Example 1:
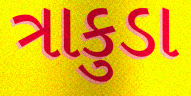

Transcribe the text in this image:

ત્રાકુડા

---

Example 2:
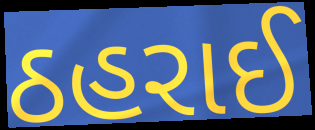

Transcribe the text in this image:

ઠહરાઈ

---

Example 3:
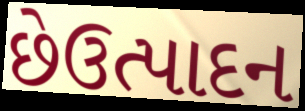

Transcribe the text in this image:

છેઉત્પાદન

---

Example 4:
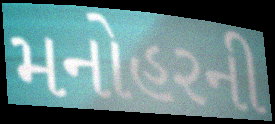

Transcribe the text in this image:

મનોહરની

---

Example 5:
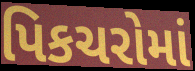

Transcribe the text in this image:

પિકચરોમાં